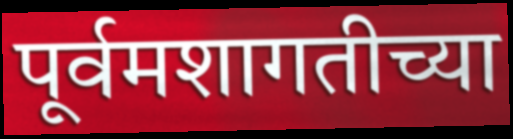
पूर्वमशागतीच्या